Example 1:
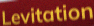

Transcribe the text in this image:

Levitation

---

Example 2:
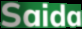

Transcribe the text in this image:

Saida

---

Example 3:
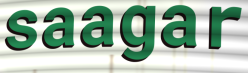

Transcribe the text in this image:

saagar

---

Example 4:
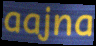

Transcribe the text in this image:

aajna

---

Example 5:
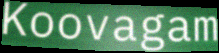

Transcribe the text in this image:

Koovagam